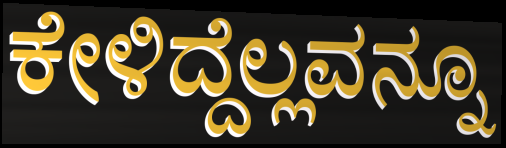
ಕೇಳಿದ್ದೆಲ್ಲವನ್ನೂ